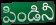
పిండినీ